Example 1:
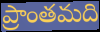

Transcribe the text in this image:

ప్రాంతమది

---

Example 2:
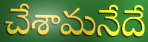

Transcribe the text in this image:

చేశామనేదే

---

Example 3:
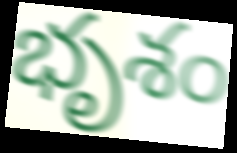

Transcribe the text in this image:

భృశం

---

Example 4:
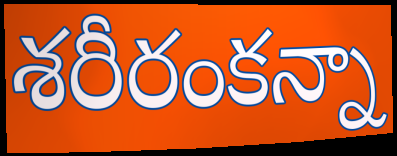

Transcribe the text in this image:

శరీరంకన్నా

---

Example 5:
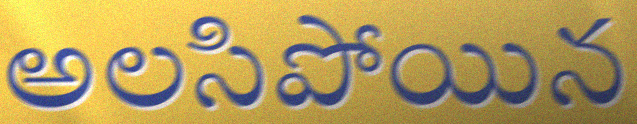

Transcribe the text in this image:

అలసిపోయిన